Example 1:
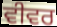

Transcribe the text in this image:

ਵੀਵਰ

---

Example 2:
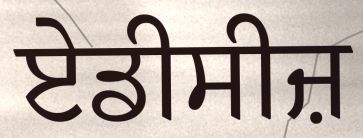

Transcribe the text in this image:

ਏਡੀਸੀਜ਼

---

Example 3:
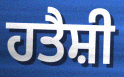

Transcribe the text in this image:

ਹਤੈਸ਼ੀ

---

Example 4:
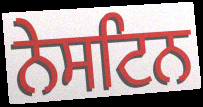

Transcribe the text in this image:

ਨੇਸਟਿਨ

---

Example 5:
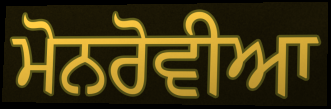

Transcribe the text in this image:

ਮੋਨਰੋਵੀਆ